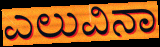
ಎಲುವಿನಾ